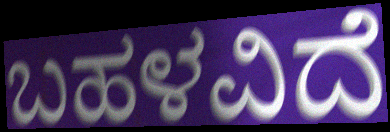
ಬಹಳವಿದೆ